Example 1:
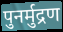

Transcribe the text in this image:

पुनर्मुद्रण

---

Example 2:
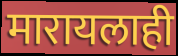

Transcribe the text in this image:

मारायलाही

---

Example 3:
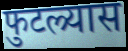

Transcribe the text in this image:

फुटल्यास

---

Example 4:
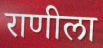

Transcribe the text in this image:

राणीला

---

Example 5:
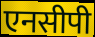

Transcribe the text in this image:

एनसीपी